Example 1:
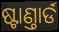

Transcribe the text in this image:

ଷ୍ଟାଣ୍ତାର୍ଡ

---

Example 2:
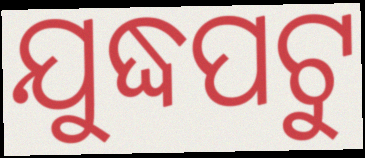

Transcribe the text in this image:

ଯୁଦ୍ଧପଟୁ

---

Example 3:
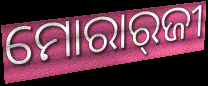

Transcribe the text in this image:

ମୋରାର୍‍ଜୀ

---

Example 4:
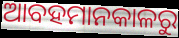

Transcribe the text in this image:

ଆବହମାନକାଳରୁ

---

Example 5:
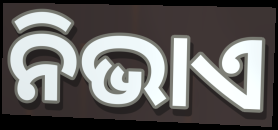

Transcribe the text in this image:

ନିଭାଏ